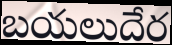
బయలుదేర